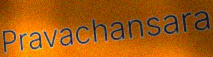
Pravachansara